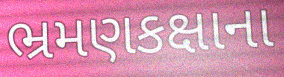
ભ્રમણકક્ષાના